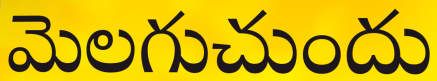
మెలగుచుందు